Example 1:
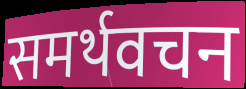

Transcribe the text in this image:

समर्थवचन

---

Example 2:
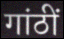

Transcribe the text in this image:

गांठीं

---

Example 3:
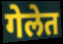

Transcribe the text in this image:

गेलेत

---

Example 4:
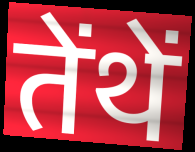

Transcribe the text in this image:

तेंथें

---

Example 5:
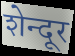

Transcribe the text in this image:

शेन्दूर